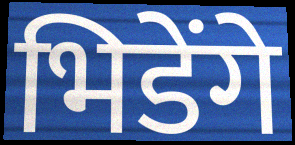
भिडेंगे